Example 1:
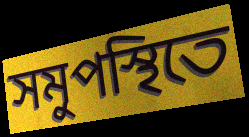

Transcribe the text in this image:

সমুপস্থিতে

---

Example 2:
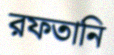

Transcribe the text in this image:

রফতানি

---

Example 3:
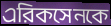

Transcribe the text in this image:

এরিকসেনকে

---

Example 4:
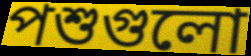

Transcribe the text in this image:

পশুগুলো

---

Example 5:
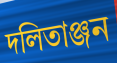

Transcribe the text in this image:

দলিতাঞ্জন